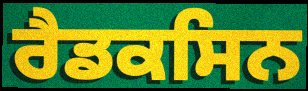
ਰੈਡਕਸਿਨ